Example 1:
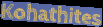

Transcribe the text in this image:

Kohathites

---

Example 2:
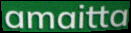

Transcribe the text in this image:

amaitta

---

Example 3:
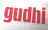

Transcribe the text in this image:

gudhi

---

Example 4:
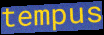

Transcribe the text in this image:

tempus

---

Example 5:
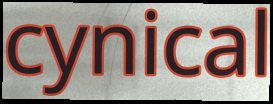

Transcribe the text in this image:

cynical